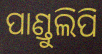
ପାଣ୍ଡୁଲିପି